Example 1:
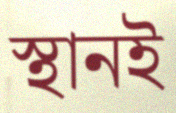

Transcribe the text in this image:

স্থানই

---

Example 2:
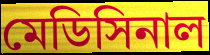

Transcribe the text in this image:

মেডিসিনাল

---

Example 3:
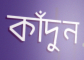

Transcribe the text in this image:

কাঁদুন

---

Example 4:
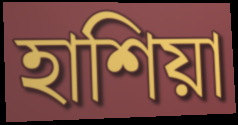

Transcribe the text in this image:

হাশিয়া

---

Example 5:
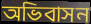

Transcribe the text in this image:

অভিবাসন